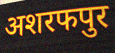
अशरफपुर